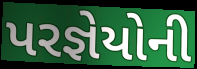
પરજ્ઞેયોની